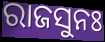
ରାଜସୁନଃ